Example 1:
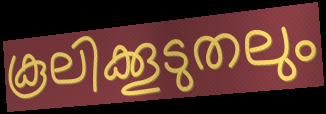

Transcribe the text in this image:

കൂലിക്കൂടുതലും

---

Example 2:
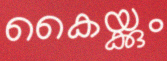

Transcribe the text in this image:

കൈയ്ക്കും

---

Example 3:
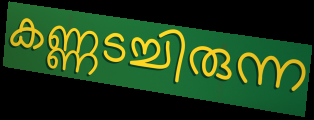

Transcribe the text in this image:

കണ്ണടച്ചിരുന്ന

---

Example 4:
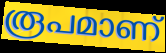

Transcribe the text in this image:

രൂപമാണ്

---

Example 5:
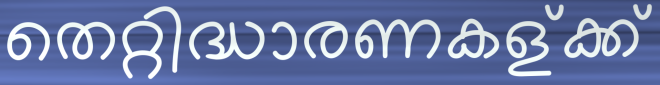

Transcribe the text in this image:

തെറ്റിദ്ധാരണകള്ക്ക്